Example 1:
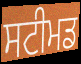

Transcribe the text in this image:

ਸਟੀਮਡ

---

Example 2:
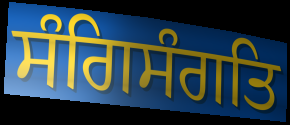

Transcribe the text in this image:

ਸੰਗਿਸੰਗਤਿ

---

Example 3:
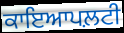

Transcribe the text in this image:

ਕਾਇਆਪਲ਼ਟੀ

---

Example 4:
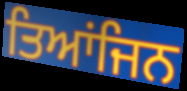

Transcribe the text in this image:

ਤਿਆਂਜਿਨ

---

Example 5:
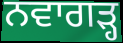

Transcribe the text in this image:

ਨਵਾਗੜ੍ਹ